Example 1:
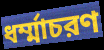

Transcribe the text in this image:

ধর্ম্মাচরণ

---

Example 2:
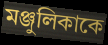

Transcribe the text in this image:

মঞ্জুলিকাকে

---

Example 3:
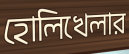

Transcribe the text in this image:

হোলিখেলার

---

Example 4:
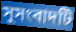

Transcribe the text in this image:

সুসংবাদটি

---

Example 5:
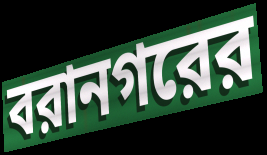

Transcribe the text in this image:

বরানগরের